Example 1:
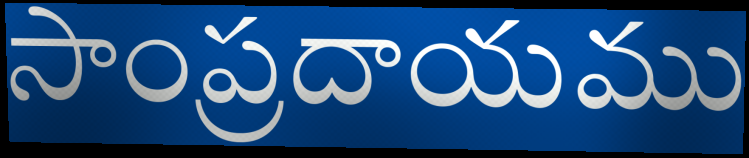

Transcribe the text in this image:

సాంప్రదాయము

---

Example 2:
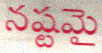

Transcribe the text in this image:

నష్టమై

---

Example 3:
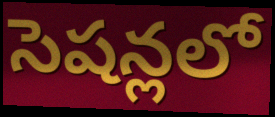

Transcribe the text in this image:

సెషన్లలో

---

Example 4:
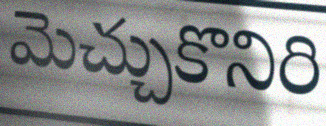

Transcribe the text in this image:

మెచ్చుకొనిరి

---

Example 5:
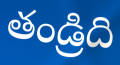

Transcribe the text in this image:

తండ్రిది